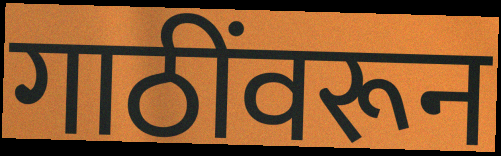
गाठींवरून